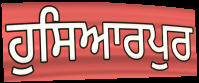
ਹੁਸਿਆਰਪੁਰ